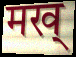
मख्